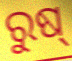
ରୁଷ୍